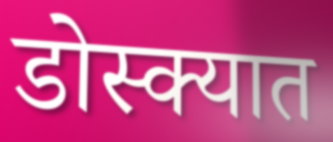
डोस्क्यात